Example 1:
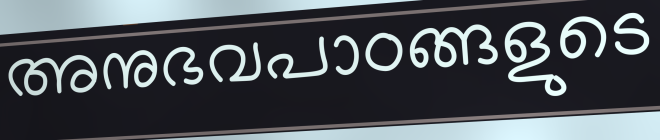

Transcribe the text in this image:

അനുഭവപാഠങ്ങളുടെ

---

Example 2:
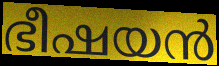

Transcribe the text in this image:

ഭീഷയൻ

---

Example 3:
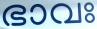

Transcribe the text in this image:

ഭാവഃ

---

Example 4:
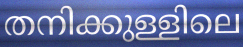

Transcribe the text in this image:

തനിക്കുള്ളിലെ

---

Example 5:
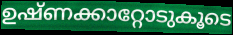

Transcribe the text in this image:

ഉഷ്ണക്കാറ്റോടുകൂടെ